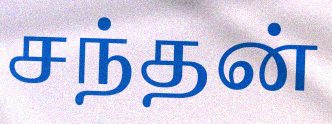
சந்தன்